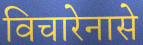
विचारेनासे